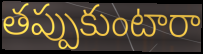
తప్పుకుంటారా